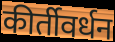
कीर्तीवर्धन